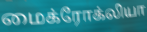
மைக்ரோக்லியா